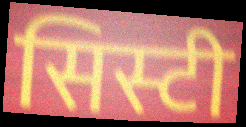
सिस्टी